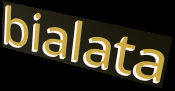
bialata